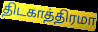
திடகாத்திரமா